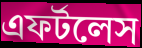
এফর্টলেস